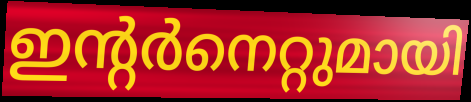
ഇന്റർനെറ്റുമായി